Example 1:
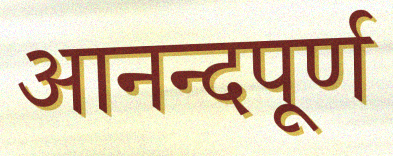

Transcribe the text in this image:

आनन्दपूर्ण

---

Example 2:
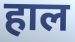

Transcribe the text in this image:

हाल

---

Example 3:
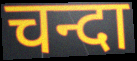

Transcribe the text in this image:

चन्दा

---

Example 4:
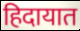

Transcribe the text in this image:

हिदायात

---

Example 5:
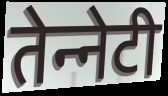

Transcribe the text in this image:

तेन्नेटी